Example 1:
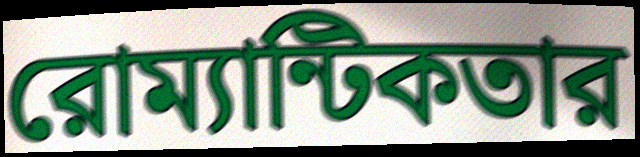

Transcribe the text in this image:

রোম্যান্টিকতার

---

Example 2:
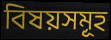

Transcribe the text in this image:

বিষয়সমূহ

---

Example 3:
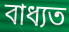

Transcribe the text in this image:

বাধ্যত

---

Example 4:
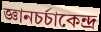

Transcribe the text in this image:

জ্ঞানচর্চাকেন্দ্র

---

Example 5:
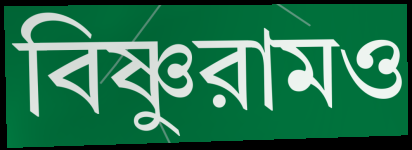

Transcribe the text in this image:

বিষ্ণুরামও